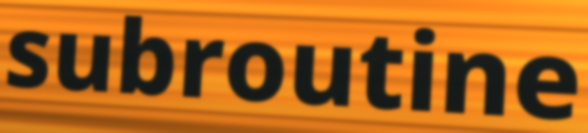
subroutine